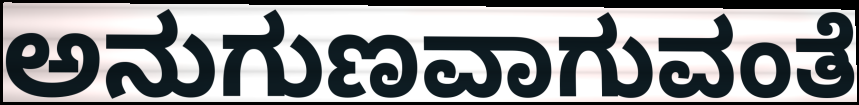
ಅನುಗುಣವಾಗುವಂತೆ